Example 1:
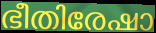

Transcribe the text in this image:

ഭീതിരേഷാ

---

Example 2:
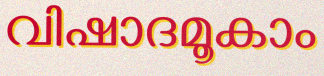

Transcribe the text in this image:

വിഷാദമൂകാം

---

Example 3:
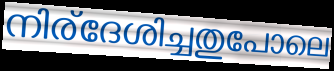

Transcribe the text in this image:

നിര്ദേശിച്ചതുപോലെ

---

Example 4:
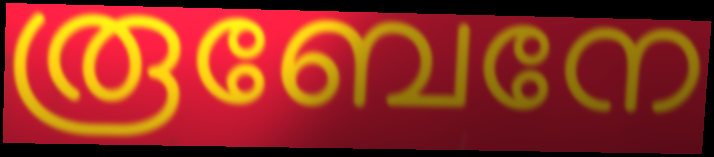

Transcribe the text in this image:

രൂബേനേ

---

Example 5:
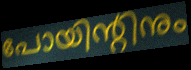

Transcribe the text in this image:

പോയിന്റിനും